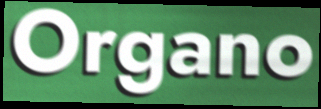
Organo